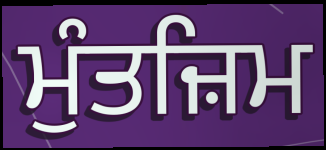
ਮੁੰਤਜ਼ਿਮ